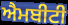
ਐਮਬੀਟੀ